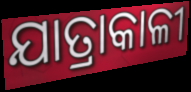
ଯାତ୍ରାକାଳୀ